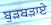
ਬੁੜਬੜਾਏ